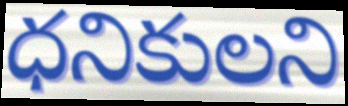
ధనికులని